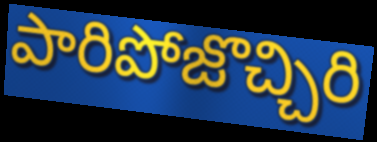
పారిపోజొచ్చిరి